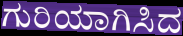
ಗುರಿಯಾಗಿಸಿದ